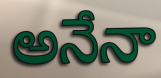
అనేనా